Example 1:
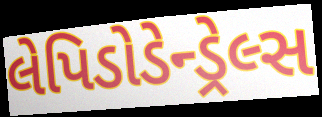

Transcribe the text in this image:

લેપિડોડેન્ડ્રેલ્સ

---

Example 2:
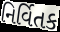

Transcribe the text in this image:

નિર્વિતક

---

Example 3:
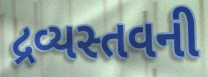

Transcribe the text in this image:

દ્રવ્યસ્તવની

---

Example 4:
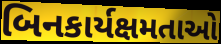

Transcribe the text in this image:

બિનકાર્યક્ષમતાઓ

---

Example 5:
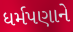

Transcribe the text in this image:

ધર્મપણાને